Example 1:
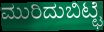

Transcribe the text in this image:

ಮುರಿದುಬಿಟ್ಟೆ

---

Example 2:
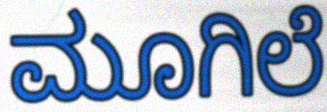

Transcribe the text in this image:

ಮೂಗಿಲೆ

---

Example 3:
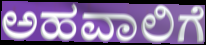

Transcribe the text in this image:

ಅಹವಾಲಿಗೆ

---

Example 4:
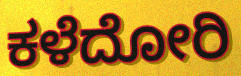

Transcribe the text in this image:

ಕಳೆದೋರಿ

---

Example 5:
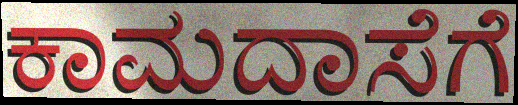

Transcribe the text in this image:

ಕಾಮದಾಸೆಗೆ